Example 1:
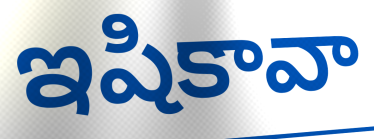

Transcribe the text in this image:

ఇషికావా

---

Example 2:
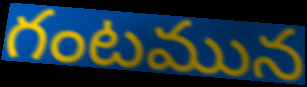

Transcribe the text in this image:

గంటమున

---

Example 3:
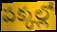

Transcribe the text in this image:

పక్కల్లో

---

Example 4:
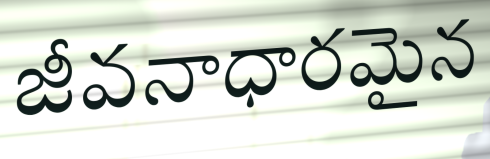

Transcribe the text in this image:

జీవనాధారమైన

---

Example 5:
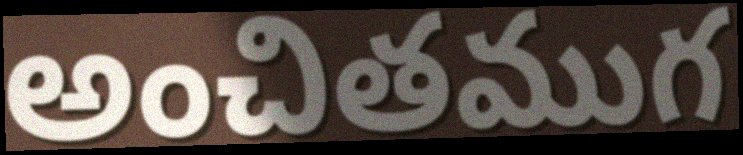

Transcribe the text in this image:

అంచితముగ